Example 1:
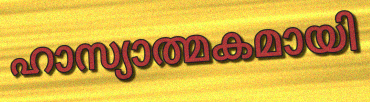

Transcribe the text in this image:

ഹാസ്യാത്മകമായി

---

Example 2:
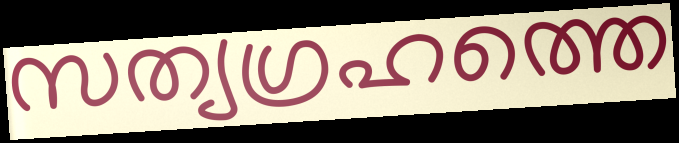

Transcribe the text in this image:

സത്യഗ്രഹത്തെ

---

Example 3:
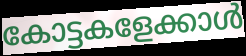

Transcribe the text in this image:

കോട്ടകളേക്കാൾ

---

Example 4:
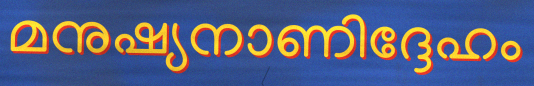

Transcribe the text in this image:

മനുഷ്യനാണിദ്ദേഹം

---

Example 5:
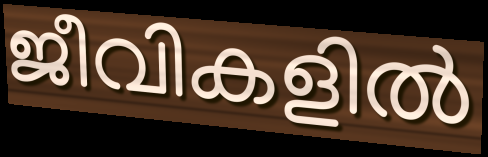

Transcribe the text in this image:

ജീവികളിൽ